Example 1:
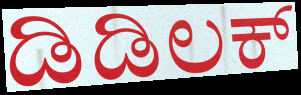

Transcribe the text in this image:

ಡಿಡಿಲಕ್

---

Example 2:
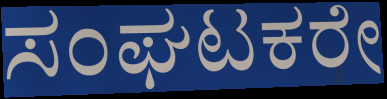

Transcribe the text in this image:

ಸಂಘಟಕರೇ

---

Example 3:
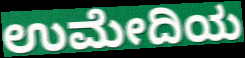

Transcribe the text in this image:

ಉಮೇದಿಯ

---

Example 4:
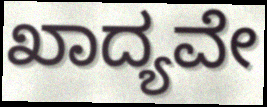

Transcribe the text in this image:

ಖಾದ್ಯವೇ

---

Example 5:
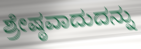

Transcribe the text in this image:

ಶ್ರೇಷ್ಠವಾದುದನ್ನು